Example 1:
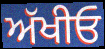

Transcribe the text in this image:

ਅੱਖੀਓ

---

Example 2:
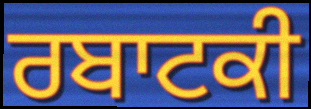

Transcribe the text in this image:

ਰਬਾਟਕੀ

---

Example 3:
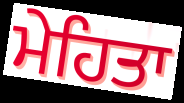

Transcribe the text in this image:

ਮੇਹਿਤਾ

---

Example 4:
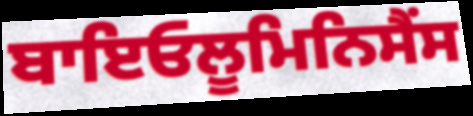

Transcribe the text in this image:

ਬਾਇਓਲੂਮਿਨਿਸੈਂਸ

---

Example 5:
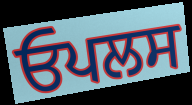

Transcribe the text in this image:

ਓਪਲਸ